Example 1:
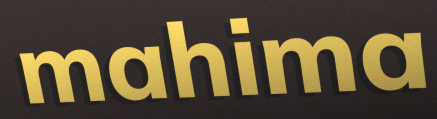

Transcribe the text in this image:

mahima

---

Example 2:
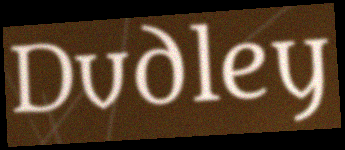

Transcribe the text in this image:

Dudley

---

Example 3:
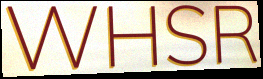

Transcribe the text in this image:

WHSR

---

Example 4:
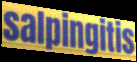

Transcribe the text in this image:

salpingitis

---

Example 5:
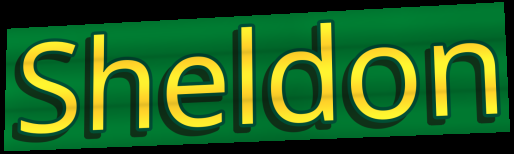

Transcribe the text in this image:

Sheldon